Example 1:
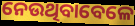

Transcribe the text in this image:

ନେଉଥିବାବେଳେ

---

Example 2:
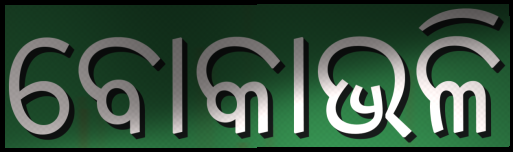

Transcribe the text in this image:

ବୋକାଭଳି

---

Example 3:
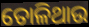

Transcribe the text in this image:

ତୋଳିଥାଉ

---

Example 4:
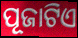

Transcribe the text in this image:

ପୂଜାଟିଏ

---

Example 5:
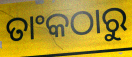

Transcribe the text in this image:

ତାଂକଠାରୁ